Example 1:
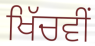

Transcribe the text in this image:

ਖਿੱਚਵੀਂ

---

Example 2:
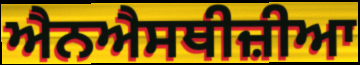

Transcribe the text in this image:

ਐਨਐਸਥੀਜ਼ੀਆ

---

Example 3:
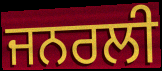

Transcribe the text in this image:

ਜਨਰਲੀ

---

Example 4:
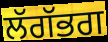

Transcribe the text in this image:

ਲੱਗੱਭਗ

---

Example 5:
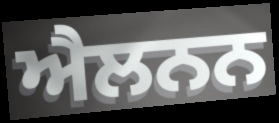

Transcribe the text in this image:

ਐਲਨਨ